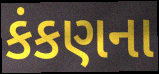
કંકણના